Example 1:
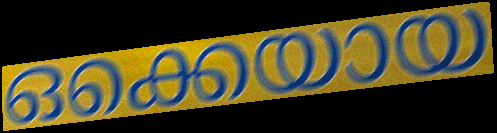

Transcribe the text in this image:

ഒക്കെയായ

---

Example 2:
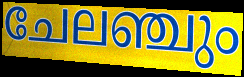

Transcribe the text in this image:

ചേലഞ്ചും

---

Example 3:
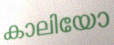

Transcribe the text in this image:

കാലിയോ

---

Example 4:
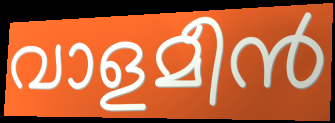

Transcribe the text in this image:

വാളമീൻ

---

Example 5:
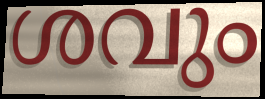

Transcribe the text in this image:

ശവും